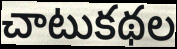
చాటుకథల